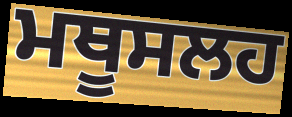
ਮਥੂਸਲਹ